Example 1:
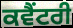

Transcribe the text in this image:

ਕਵੈਂਟਰੀ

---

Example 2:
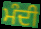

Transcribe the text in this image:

ਮੰਦੀ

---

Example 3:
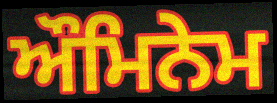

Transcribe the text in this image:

ਔਮਿਨੇਮ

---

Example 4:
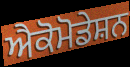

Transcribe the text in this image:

ਐਕੋਮੋਡੇਸ਼ਨ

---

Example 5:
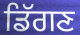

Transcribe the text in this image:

ਡਿੱਗਣ